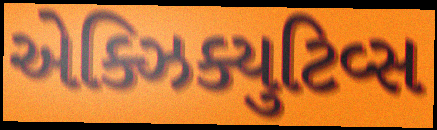
એક્ઝિક્યુટિવ્સ